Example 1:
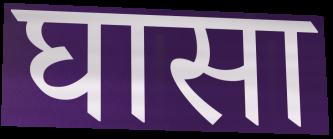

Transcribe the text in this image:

घासा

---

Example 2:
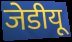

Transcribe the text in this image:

जेडीयू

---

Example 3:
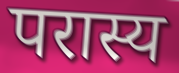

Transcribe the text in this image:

परास्य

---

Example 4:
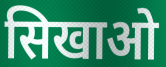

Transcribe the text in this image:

सिखाओ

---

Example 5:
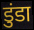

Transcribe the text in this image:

डुंडा